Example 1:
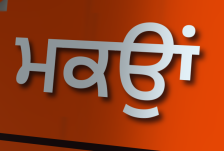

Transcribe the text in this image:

ਮਕਉਾਂ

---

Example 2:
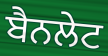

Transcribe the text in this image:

ਬੈਨਲੇਟ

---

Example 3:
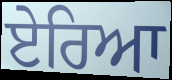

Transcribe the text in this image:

ਏਰਿਆ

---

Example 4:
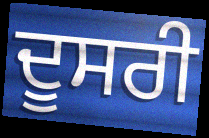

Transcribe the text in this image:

ਦੂਸਰੀ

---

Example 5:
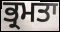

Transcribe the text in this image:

ਭ੍ਰਮਤਾ